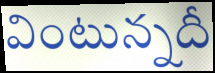
వింటున్నదీ